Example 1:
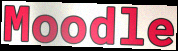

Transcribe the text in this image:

Moodle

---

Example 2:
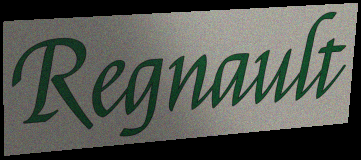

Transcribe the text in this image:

Regnault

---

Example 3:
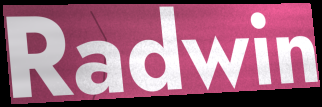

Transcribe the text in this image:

Radwin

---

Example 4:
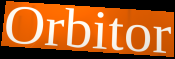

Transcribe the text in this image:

Orbitor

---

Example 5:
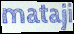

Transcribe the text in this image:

mataji